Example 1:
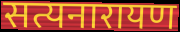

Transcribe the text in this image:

सत्यनारायण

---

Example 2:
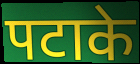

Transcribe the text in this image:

पटाके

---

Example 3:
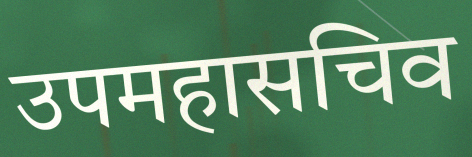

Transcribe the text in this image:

उपमहासचिव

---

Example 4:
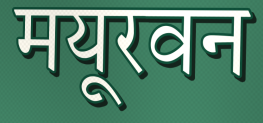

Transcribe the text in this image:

मयूरवन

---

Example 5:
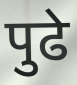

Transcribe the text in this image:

पुढे